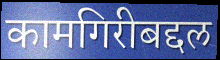
कामगिरीबद्दल